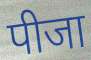
पीजा